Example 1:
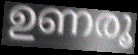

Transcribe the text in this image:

ഉണരൂ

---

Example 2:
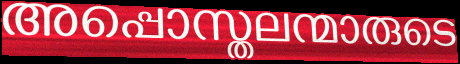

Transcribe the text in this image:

അപ്പൊസ്തലന്മാരുടെ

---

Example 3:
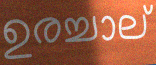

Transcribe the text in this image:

ഉരച്ചാല്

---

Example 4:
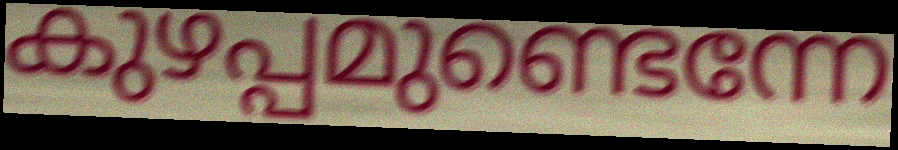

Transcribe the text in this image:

കുഴപ്പമുണ്ടെന്നേ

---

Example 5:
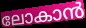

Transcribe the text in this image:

ലോകാൻ